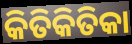
କିତିକିତିକା